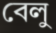
বেলু